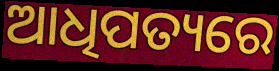
ଆଧିପତ୍ୟରେ